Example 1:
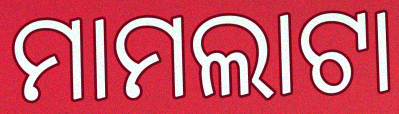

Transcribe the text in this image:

ମାମଲାଟା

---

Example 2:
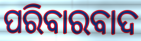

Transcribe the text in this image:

ପରିବାରବାଦ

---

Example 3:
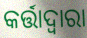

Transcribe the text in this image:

କର୍ତ୍ତାଦ୍ଵାରା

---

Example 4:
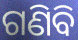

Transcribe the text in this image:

ଗଣିବି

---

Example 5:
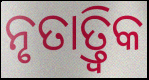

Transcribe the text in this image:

ନୃତାତ୍ତ୍ବିକ